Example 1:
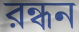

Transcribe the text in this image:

রন্ধন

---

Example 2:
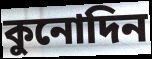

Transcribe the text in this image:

কুনোদিন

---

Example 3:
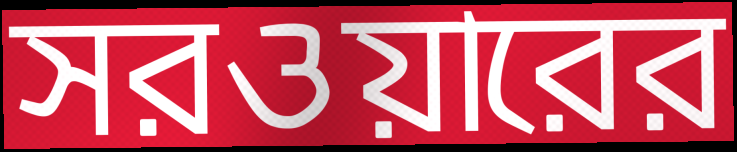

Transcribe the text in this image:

সরওয়ারের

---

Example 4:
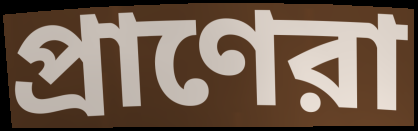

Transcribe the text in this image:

প্রাণেরা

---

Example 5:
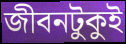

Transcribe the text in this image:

জীবনটুকুই